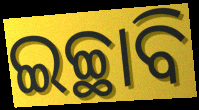
ଇଚ୍ଛାବି